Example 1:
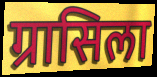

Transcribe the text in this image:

ग्रासिला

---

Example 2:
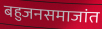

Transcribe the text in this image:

बहुजनसमाजांत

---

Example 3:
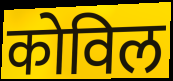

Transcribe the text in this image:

कोविल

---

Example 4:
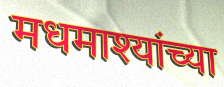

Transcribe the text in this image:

मधमाश्‍यांच्या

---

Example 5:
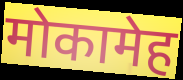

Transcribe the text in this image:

मोकामेह